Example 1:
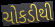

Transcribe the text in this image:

ચોકડીથી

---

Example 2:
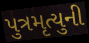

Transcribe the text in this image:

પુત્રમૃત્યુની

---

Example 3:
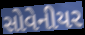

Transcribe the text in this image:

સોવેનીયર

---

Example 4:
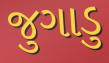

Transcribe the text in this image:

જુગાડુ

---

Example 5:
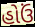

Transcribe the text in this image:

હોઉં